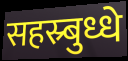
सहस्र्बुध्धे